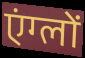
एंग्लों